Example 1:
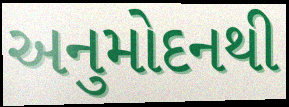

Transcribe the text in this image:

અનુમોદનથી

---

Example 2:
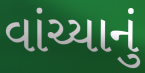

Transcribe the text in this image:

વાંચ્યાનું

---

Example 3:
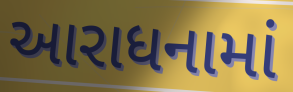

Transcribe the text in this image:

આરાધનામાં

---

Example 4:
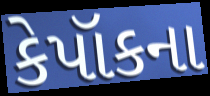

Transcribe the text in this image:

કેપૉકના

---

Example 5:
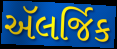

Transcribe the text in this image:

ઍલર્જિક